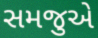
સમજુએ